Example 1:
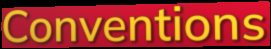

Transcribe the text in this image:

Conventions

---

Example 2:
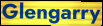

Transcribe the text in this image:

Glengarry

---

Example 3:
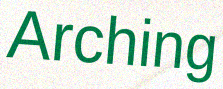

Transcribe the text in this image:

Arching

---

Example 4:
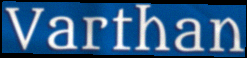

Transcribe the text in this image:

Varthan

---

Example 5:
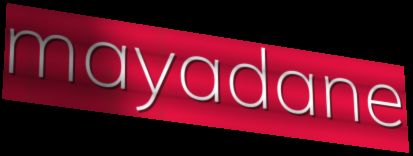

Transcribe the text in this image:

mayadane